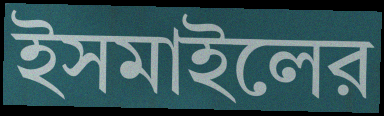
ইসমাইলের